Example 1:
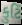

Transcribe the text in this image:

કુટિં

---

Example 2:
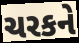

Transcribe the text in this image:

ચરકને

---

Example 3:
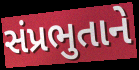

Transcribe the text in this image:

સંપ્રભુતાને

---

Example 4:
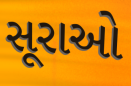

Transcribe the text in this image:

સૂરાઓ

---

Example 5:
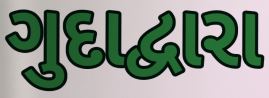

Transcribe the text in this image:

ગુદાદ્વારા